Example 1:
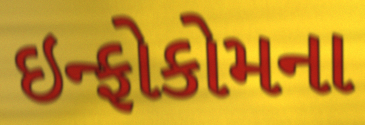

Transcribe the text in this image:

ઇન્ફોકોમના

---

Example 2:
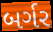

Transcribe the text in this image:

બર્ગર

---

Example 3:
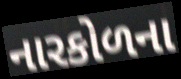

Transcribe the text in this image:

નારકોળના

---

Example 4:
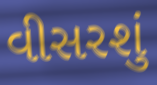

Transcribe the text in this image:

વીસરશું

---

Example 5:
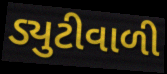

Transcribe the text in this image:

ડ્યુટીવાળી